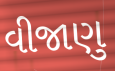
વીજાણુ